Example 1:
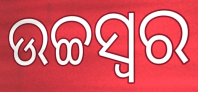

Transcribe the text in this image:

ଉଚ୍ଚସ୍ଵର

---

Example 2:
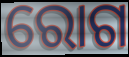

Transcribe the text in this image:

ରୋଗ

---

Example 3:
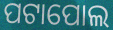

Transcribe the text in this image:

ପଟାପୋଲ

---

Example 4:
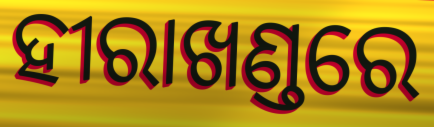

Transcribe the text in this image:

ହୀରାଖଣ୍ଡରେ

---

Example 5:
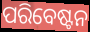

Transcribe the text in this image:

ପରିବେଷ୍ଟନ